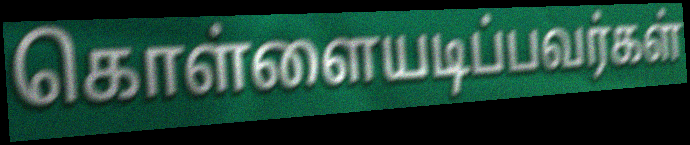
கொள்ளையடிப்பவர்கள்